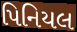
પિનિયલ